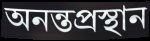
অনন্তপ্রস্থান